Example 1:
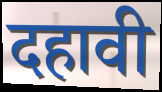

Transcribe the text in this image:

दहावी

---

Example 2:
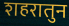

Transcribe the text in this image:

शहरातुन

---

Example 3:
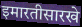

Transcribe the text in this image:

इमारतीसारखे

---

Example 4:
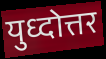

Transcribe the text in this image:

युध्दोत्तर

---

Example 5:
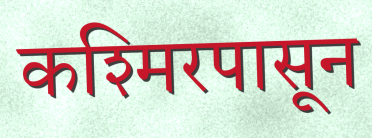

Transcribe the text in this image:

कश्मिरपासून